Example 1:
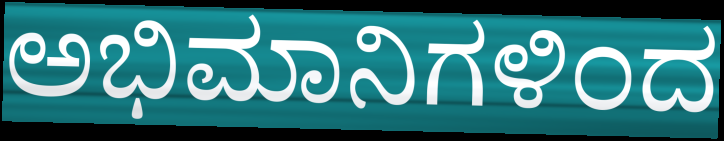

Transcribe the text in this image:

ಅಭಿಮಾನಿಗಳಿಂದ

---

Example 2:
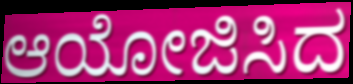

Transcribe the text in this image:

ಆಯೋಜಿಸಿದ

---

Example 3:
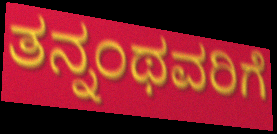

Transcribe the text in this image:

ತನ್ನಂಥವರಿಗೆ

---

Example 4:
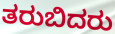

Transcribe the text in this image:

ತರುಬಿದರು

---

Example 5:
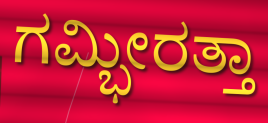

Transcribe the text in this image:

ಗಮ್ಭೀರತ್ತಾ